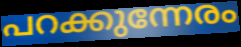
പറക്കുന്നേരം